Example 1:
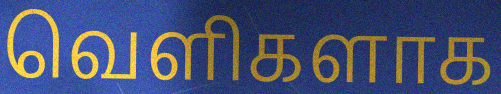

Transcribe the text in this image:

வெளிகளாக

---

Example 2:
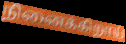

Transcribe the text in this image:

நினைக்கிறாய்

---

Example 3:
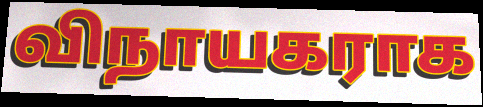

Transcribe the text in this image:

விநாயகராக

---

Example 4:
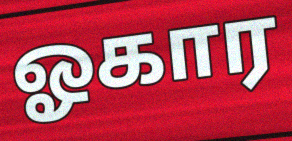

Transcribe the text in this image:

ஓகார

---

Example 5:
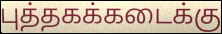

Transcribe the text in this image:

புத்தகக்கடைக்கு